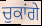
ਚੁਕਾਂਗੇ